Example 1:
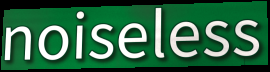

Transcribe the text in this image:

noiseless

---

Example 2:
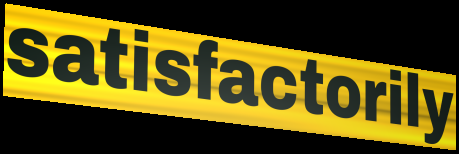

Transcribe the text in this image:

satisfactorily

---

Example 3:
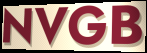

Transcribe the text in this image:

NVGB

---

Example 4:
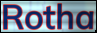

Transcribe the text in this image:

Rotha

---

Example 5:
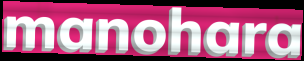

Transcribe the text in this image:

manohara